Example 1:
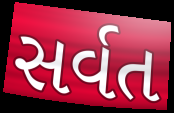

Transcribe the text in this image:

સર્વત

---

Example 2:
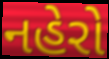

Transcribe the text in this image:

નહેરો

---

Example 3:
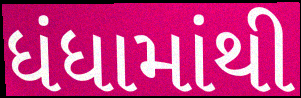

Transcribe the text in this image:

ધંધામાંથી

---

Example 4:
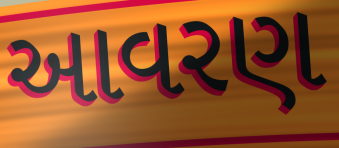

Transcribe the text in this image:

આવરણ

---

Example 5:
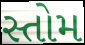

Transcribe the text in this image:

સ્તોમ